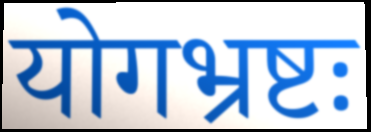
योगभ्रष्टः